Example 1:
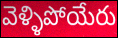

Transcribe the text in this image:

వెళ్ళిపోయేరు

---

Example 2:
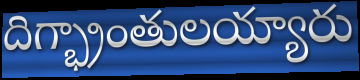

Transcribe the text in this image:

దిగ్భ్రాంతులయ్యారు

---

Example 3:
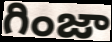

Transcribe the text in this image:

గింజా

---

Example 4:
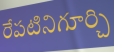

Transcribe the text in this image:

రేపటినిగూర్చి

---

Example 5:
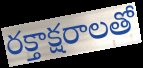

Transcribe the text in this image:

రక్తాక్షరాలతో